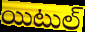
యిటుల్